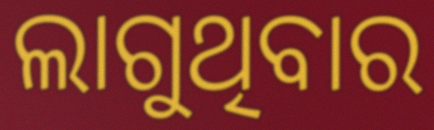
ଲାଗୁଥିବାର